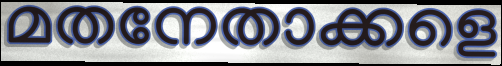
മതനേതാക്കളെ